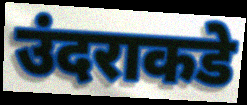
उंदराकडे